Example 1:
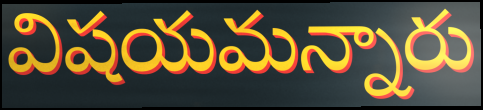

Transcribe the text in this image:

విషయమన్నారు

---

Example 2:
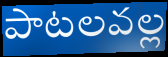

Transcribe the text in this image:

పాటలవల్ల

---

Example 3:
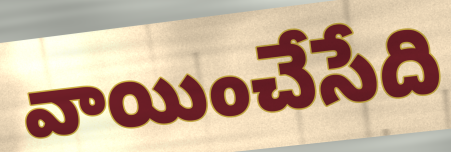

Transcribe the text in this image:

వాయించేసేది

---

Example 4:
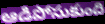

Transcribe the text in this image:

ఆడిపోసుకుంది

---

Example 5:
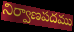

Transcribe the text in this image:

నిర్వాణపదము